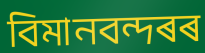
বিমানবন্দৰৰ